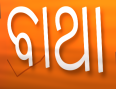
ବାଥା